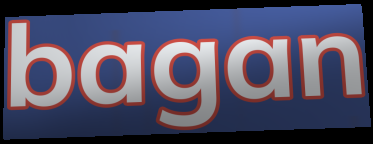
bagan